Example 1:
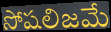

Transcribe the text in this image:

సోషలిజమే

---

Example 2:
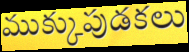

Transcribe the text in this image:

ముక్కుపుడకలు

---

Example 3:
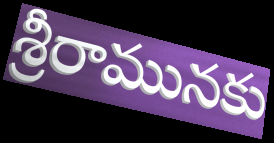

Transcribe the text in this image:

శ్రీరామునకు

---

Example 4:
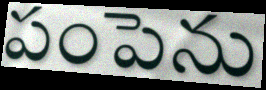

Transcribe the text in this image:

పంపెను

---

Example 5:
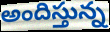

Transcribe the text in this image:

అందిస్తున్న